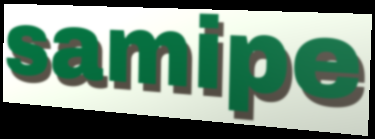
samipe